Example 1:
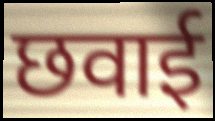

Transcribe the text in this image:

छवाई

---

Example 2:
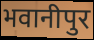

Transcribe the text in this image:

भवानीपुर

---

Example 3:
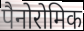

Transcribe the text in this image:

पैनोरोमिक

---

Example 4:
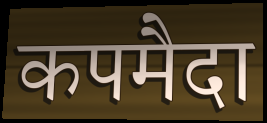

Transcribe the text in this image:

कपमैदा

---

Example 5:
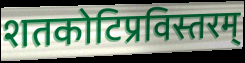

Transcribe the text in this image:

शतकोटिप्रविस्तरम्